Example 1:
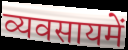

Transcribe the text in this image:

व्यवसायमें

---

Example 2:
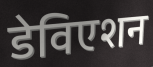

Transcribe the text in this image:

डेविएशन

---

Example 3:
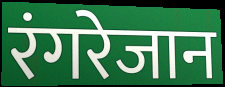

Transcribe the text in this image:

रंगरेजान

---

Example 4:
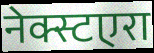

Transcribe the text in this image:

नेक्स्टएरा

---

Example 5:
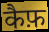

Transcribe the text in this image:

कैफ़